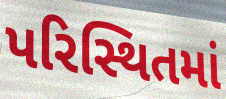
પરિસ્થિતમાં